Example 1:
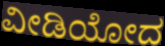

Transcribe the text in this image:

ವೀಡಿಯೋದ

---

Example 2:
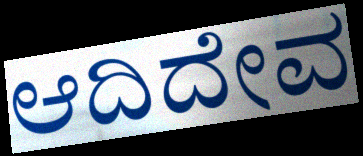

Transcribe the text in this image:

ಆದಿದೇವ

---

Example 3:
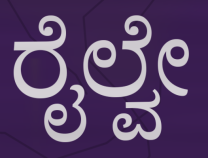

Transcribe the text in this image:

ರೈಲ್ವೇ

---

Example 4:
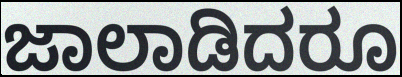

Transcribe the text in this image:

ಜಾಲಾಡಿದರೂ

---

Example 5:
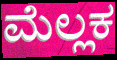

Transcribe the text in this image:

ಮೆಲ್ಲಕ